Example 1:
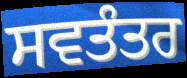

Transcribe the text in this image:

ਸਵਤੰਤਰ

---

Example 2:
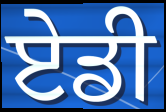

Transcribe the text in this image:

ਏਡੀ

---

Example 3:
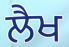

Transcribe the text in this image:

ਲੈਖ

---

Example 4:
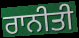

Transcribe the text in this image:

ਰਾਨੀਤੀ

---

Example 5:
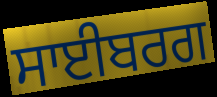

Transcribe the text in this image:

ਸਾਈਬਰਗ